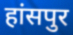
हांसपुर